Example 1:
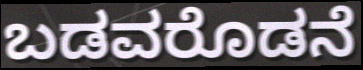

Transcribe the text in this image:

ಬಡವರೊಡನೆ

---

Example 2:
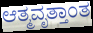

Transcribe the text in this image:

ಆತ್ಮವೃತ್ತಾಂತ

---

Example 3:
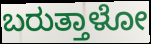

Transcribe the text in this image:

ಬರುತ್ತಾಳೋ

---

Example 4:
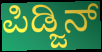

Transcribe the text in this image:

ಪಿಡ್ಜಿನ್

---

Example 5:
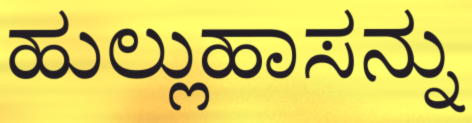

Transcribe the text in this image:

ಹುಲ್ಲುಹಾಸನ್ನು